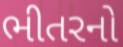
ભીતરનો